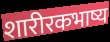
शारीरकभाष्य